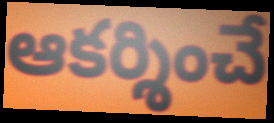
ఆకర్శించే